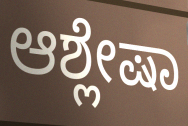
ಆಶ್ಲೇಷಾ